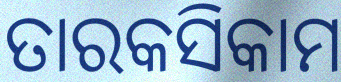
ତାରକସିକାମ